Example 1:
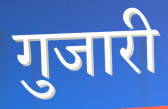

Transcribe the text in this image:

गुजारी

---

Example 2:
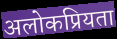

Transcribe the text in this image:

अलोकप्रियता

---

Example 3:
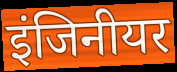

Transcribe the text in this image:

इंजिनीयर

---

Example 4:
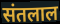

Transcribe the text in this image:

संतलाल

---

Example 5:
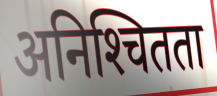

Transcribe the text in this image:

अनिश्‍चितता